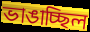
ভাঙাচ্ছিল